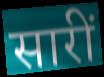
सारीं